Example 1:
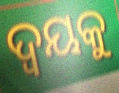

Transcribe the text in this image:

ଦ୍ଵୟକୁ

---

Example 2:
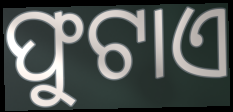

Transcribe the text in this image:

ଫୁଟାଏ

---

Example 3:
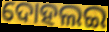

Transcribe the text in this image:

ଦୋହଲଇ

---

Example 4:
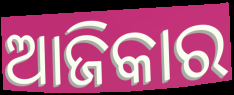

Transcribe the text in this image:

ଆଜିକାର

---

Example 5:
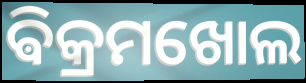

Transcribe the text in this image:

ଵିକ୍ରମଖୋଲ